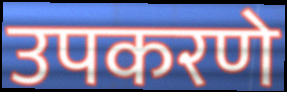
उपकरणे